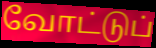
வோட்டுப்